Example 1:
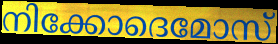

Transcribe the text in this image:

നിക്കോദെമോസ്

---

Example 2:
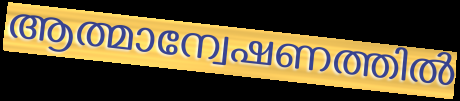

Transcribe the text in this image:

ആത്മാന്വേഷണത്തിൽ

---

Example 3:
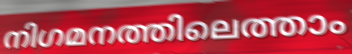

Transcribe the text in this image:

നിഗമനത്തിലെത്താം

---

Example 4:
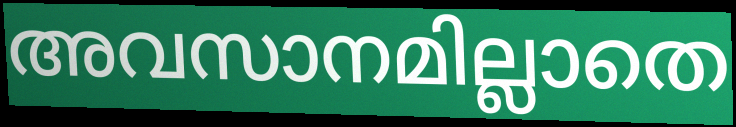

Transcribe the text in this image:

അവസാനമില്ലാതെ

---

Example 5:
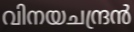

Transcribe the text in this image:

വിനയചന്ദ്രൻ